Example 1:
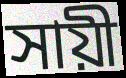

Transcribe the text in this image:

সায়ী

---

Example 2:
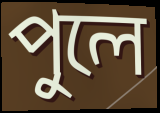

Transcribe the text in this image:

পুলে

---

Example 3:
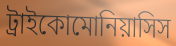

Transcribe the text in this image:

ট্রাইকোমোনিয়াসিস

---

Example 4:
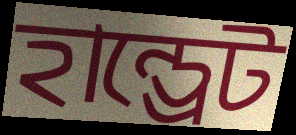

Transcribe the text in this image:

হান্ড্রেট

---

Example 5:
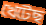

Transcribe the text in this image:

খেটেছ